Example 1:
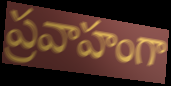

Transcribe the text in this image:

ప్రవాహంగా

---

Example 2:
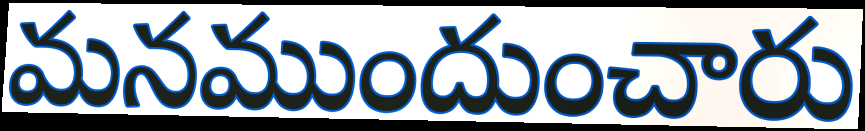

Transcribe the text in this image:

మనముందుంచారు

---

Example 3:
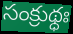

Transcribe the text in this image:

సంక్రుథ్ధః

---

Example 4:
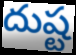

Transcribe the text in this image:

దుష్ట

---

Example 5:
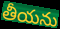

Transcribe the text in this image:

తీయను